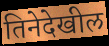
तिनेदेखील